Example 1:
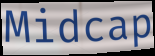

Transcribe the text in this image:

Midcap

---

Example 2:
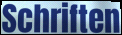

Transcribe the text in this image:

Schriften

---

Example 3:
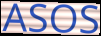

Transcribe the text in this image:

ASOS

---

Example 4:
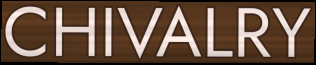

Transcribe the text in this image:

CHIVALRY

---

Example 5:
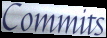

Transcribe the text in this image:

Commits